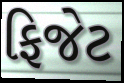
ફિજેટ